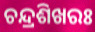
ଚନ୍ଦ୍ରଶିଖରଃ